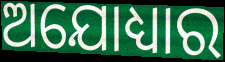
ଅଯୋଧ୍ୟାର